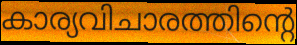
കാര്യവിചാരത്തിന്റെ